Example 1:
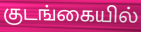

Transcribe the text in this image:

குடங்கையில்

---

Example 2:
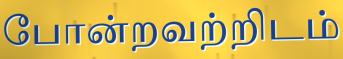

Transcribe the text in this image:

போன்றவற்றிடம்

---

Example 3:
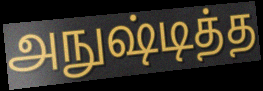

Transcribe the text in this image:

அநுஷ்டித்த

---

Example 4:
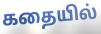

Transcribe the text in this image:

கதையில்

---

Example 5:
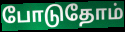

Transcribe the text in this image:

போடுதோம்